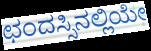
ಛಂದಸ್ಸಿನಲ್ಲಿಯೇ